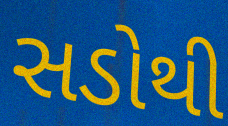
સડોથી